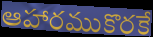
ఆహారముకొరకే